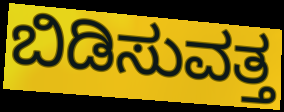
ಬಿಡಿಸುವತ್ತ